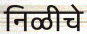
निळीचे